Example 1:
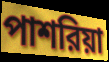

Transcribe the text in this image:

পাশরিয়া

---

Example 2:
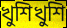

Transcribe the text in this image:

খুশিখুশি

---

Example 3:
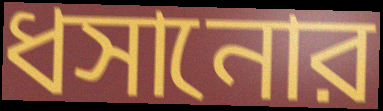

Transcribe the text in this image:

ধসানোর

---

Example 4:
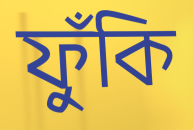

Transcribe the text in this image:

ফুঁকি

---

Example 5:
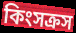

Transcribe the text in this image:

কিংসক্রস